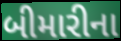
બીમારીના